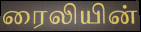
ரைலியின்